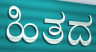
ಹಿತದ